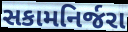
સકામનિર્જરા